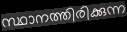
സ്ഥാനത്തിരിക്കുന്ന